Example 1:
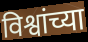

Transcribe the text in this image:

विश्वांच्या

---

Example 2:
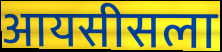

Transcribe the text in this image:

आयसीसला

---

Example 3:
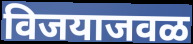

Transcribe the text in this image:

विजयाजवळ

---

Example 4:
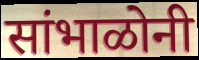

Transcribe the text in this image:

सांभाळोनी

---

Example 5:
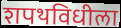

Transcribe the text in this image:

शपथविधीला